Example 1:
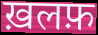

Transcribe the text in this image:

ख़लफ़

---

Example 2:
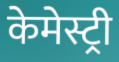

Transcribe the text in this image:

केमेस्ट्री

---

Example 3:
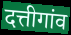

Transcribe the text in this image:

दत्तीगांव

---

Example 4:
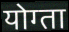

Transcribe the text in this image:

योग्ता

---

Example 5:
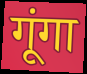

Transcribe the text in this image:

गूंगा